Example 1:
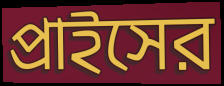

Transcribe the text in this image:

প্রাইসের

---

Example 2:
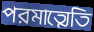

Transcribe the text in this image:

পরমাত্মেতি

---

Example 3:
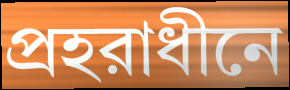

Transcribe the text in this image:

প্রহরাধীনে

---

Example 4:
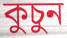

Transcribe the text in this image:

কুচুন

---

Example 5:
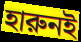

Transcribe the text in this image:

হারুনই